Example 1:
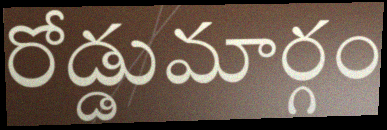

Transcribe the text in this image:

రోడ్డుమార్గం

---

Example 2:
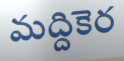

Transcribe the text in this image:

మద్దికెర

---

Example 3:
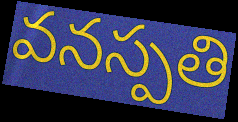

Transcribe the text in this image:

వనస్పతి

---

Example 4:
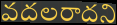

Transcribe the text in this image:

వదలరాదని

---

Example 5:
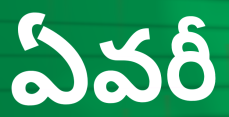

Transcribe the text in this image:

ఏవరీ